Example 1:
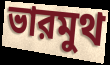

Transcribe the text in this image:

ভারমুথ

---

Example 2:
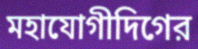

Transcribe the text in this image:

মহাযোগীদিগের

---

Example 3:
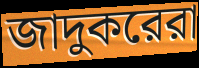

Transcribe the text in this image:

জাদুকরেরা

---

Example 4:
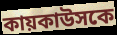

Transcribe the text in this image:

কায়কাউসকে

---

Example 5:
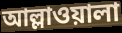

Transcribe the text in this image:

আল্লাওয়ালা